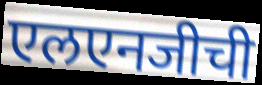
एलएनजीची